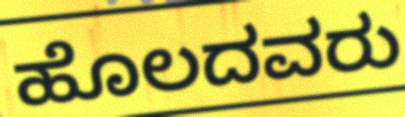
ಹೊಲದವರು